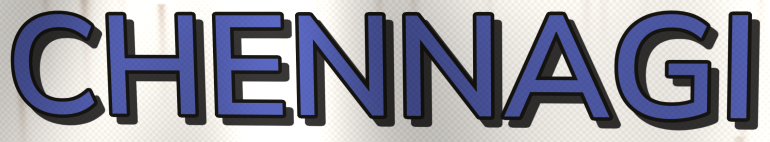
CHENNAGI